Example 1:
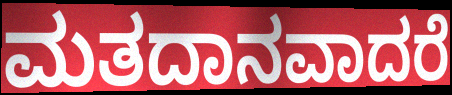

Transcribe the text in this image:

ಮತದಾನವಾದರೆ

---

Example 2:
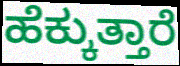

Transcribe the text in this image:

ಹೆಕ್ಕುತ್ತಾರೆ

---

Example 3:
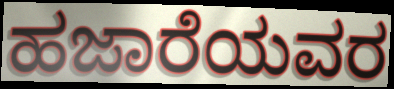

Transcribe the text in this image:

ಹಜಾರೆಯವರ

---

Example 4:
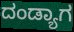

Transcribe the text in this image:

ದಂಡ್ಯಾಗ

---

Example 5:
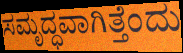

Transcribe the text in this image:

ಸಮೃದ್ಧವಾಗಿತ್ತೆಂದು